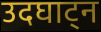
उदघाट्न